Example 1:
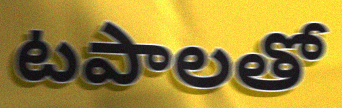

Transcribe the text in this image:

టపాలతో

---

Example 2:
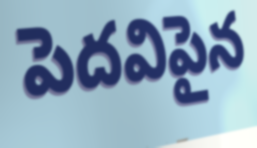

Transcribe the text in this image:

పెదవిపైన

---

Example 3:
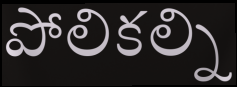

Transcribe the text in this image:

పోలికల్ని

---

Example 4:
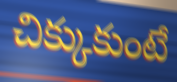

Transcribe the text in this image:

చిక్కుకుంటే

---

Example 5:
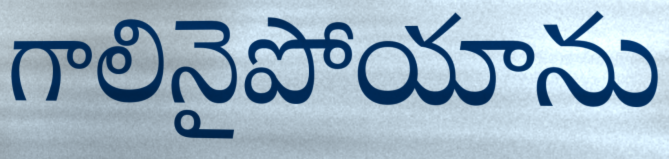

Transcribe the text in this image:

గాలినైపోయాను